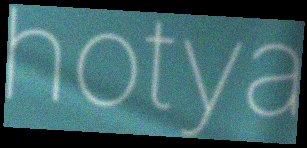
hotya